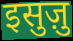
इसुज़ु